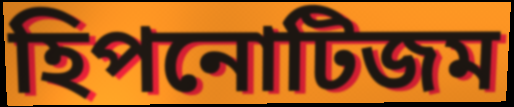
হিপনোটিজম